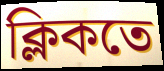
ক্লিকতে